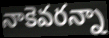
నాకెవరన్నా